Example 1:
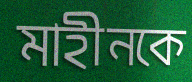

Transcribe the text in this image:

মাহীনকে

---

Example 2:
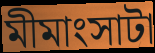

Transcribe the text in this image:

মীমাংসাটা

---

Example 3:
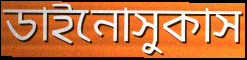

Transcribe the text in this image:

ডাইনোসুকাস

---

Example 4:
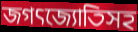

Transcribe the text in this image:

জগৎজ্যোতিসহ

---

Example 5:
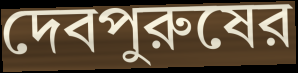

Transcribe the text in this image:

দেবপুরুষের